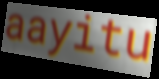
aayitu